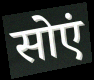
सोएं